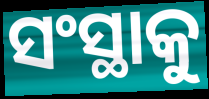
ସଂସ୍ଥାକୁ